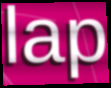
lap